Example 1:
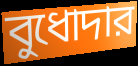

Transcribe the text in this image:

বুধোদার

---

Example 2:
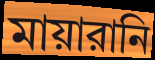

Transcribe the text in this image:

মায়ারানি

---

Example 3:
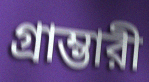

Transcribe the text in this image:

গ্রাম্ভারী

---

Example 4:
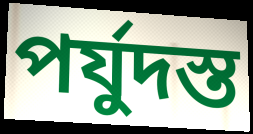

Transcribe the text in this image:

পর্যুদস্ত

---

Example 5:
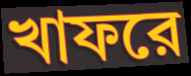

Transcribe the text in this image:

খাফরে